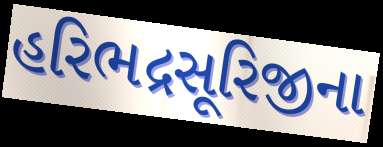
હરિભદ્રસૂરિજીના